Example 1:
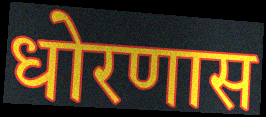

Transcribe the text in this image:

धोरणास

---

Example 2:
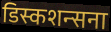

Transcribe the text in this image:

डिस्कशन्सना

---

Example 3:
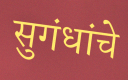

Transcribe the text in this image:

सुगंधांचे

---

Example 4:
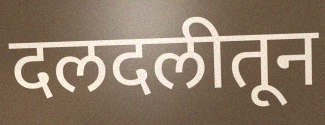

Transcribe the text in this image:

दलदलीतून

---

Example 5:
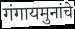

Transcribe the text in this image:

गंगायमुनांचे